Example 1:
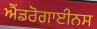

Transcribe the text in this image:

ਐਂਡਰੋਗਾਈਨਸ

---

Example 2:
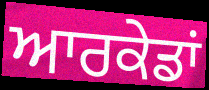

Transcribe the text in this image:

ਆਰਕੇਡਾਂ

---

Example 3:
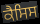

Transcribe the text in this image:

ਕੈਸਿਸ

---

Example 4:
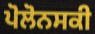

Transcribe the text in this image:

ਪੋਲੋਨਸਕੀ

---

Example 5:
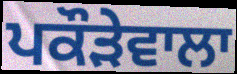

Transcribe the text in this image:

ਪਕੌੜੇਵਾਲਾ